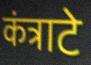
कंत्राटे